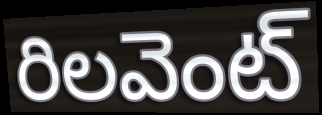
రిలవెంట్